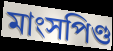
মাংসপিণ্ড